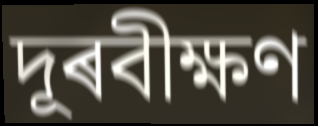
দূৰবীক্ষণ